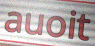
auoit